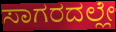
ಸಾಗರದಲ್ಲೇ